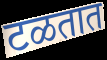
टळतात